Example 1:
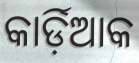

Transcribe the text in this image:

କାର୍ଡ଼ିଆକ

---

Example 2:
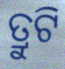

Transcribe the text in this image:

ତ୍ରୁଟି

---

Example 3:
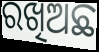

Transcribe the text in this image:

ରଖିଅଛ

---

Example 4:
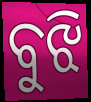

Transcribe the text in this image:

ବୁଝି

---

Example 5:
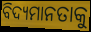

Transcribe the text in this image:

ବିଦ୍ୟମାନତାକୁ